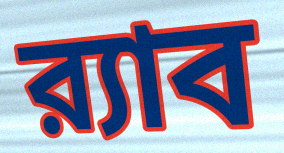
র‍্যাব